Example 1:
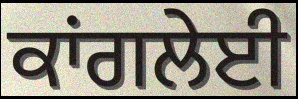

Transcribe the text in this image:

ਕਾਂਗਲੇਈ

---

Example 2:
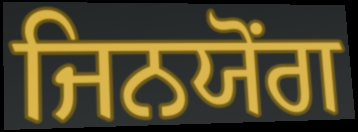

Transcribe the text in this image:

ਜਿਨਯੋਂਗ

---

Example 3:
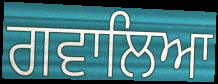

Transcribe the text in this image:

ਗਵਾਲਿਆ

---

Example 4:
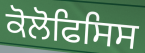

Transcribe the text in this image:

ਕੋਲੋਫਿਸਿਸ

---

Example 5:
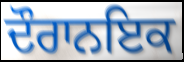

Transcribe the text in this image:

ਦੌਰਾਨਇਕ